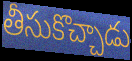
తీసుకొచ్చాడు